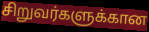
சிறுவர்களுக்கான